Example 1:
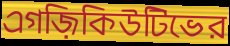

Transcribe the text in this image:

এগজ়িকিউটিভের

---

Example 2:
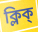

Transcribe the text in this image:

ক্লিক্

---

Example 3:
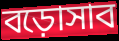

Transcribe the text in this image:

বড়োসাব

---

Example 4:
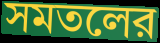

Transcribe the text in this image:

সমতলের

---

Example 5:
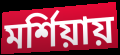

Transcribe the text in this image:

মর্শিয়ায়